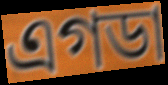
এগডা